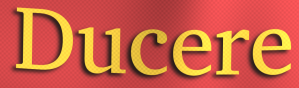
Ducere